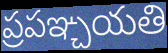
ప్రపఞ్చయతి